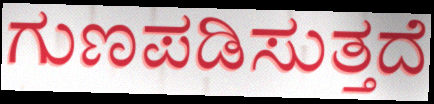
ಗುಣಪಡಿಸುತ್ತದೆ